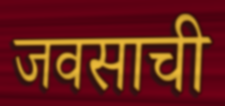
जवसाची